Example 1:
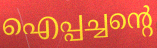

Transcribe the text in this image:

ഐപ്പച്ചന്റെ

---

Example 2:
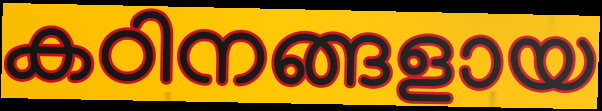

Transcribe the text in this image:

കഠിനങ്ങളായ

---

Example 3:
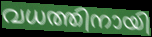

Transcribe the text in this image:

വധത്തിനായി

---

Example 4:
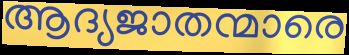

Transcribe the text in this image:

ആദ്യജാതന്മാരെ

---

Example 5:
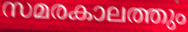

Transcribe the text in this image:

സമരകാലത്തും